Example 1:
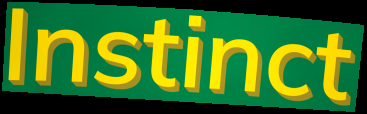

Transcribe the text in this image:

Instinct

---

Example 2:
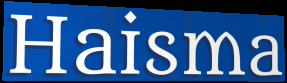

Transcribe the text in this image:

Haisma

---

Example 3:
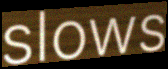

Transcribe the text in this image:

slows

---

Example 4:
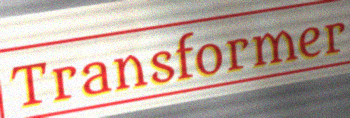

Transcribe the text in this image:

Transformer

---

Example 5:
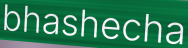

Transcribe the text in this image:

bhashecha